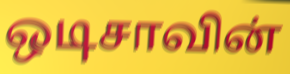
ஒடிசாவின்